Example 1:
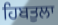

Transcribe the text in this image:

ਹਿਬਤੁਲਾ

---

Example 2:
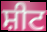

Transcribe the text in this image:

ਸ਼ੀਟ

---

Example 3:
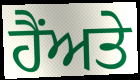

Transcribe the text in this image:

ਹੈਂਅਤੇ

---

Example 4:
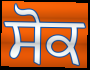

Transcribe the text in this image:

ਸੋਕ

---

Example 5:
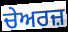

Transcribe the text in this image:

ਚੇਅਰਜ਼